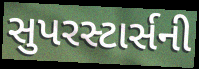
સુપરસ્ટાર્સની